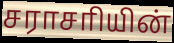
சராசரியின்